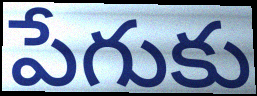
పేగుకు